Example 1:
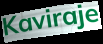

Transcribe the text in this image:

Kaviraje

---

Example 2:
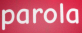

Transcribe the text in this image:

parola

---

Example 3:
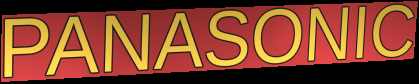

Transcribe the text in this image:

PANASONIC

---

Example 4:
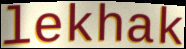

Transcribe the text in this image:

lekhak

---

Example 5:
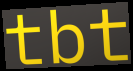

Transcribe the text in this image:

tbt